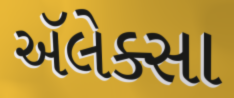
ઍલેક્સા